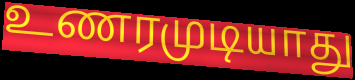
உணரமுடியாது